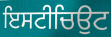
ਇਸਟੀਚਿਉਟ